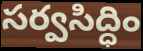
సర్వసిద్ధిం